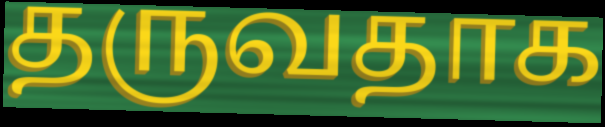
தருவதாக